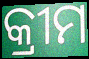
କ୍ରୀମ